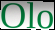
Olo